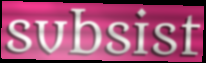
subsist